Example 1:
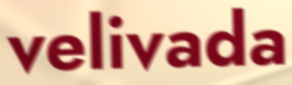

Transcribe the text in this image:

velivada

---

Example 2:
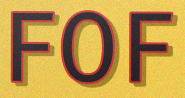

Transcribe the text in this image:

FOF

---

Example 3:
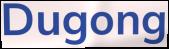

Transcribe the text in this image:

Dugong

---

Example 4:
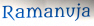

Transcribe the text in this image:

Ramanuja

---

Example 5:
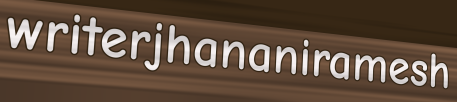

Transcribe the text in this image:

writerjhananiramesh